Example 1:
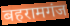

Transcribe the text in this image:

बहरामगंज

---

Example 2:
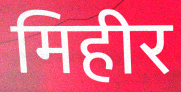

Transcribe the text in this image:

मिहीर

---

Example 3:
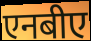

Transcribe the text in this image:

एनबीए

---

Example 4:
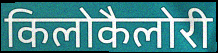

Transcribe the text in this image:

किलोकैलोरी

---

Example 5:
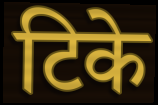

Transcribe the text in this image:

टिके